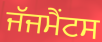
ਜੱਜਮੈਂਟਸ